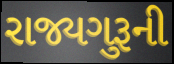
રાજ્યગુરૂની